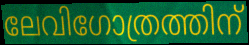
ലേവിഗോത്രത്തിന്